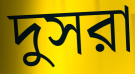
দুসরা